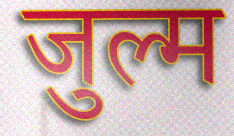
जुल्म